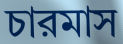
চারমাস